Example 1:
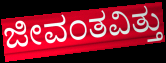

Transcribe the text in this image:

ಜೀವಂತವಿತ್ತು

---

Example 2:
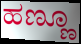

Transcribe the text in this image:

ಹಣ್ಣೂ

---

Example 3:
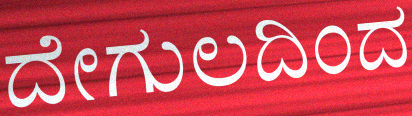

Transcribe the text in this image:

ದೇಗುಲದಿಂದ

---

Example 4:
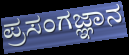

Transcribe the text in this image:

ಪ್ರಸಂಗಜ್ಞಾನ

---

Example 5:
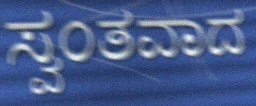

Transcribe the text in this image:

ಸ್ವಂತವಾದ